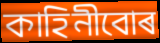
কাহিনীবোৰ